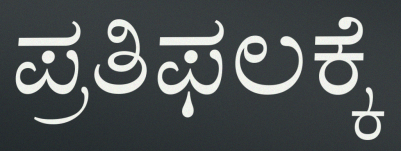
ಪ್ರತಿಫಲಕ್ಕೆ